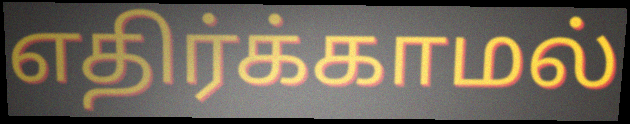
எதிர்க்காமல்